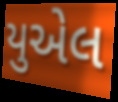
યુએલ